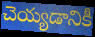
చెయ్యడానికీ